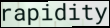
rapidity